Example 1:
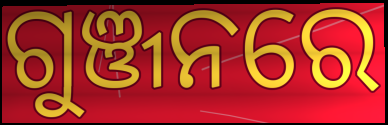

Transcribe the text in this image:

ଗୁଞ୍ଜନରେ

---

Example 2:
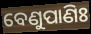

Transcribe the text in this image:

ବେଣୁପାଣିଃ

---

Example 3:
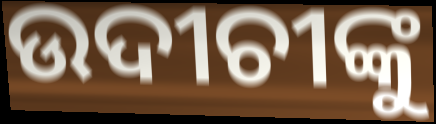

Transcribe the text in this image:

ଉଦୀଚୀଙ୍କୁ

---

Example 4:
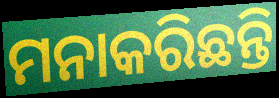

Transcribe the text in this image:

ମନାକରିଛନ୍ତି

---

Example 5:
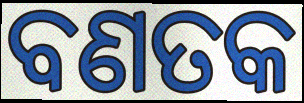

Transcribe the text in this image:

ବଣତକ